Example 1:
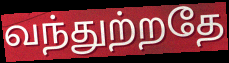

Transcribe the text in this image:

வந்துற்றதே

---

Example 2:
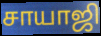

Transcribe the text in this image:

சாயாஜி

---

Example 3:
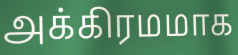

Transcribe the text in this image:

அக்கிரமமாக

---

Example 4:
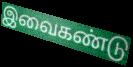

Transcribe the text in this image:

இவைகண்டு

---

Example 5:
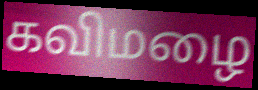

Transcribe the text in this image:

கவிமழை